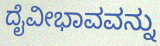
ದೈವೀಭಾವವನ್ನು